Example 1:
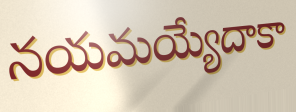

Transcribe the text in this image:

నయమయ్యేదాకా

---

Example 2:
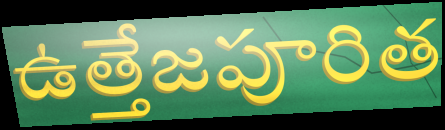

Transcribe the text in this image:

ఉత్తేజపూరిత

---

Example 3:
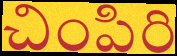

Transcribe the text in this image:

చింపిరి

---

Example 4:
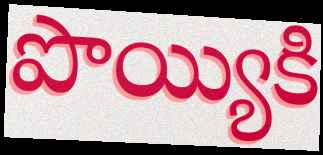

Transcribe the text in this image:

పొయ్యికి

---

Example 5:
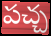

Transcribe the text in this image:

పచ్చ